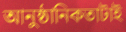
আনুষ্ঠানিকতাটাই